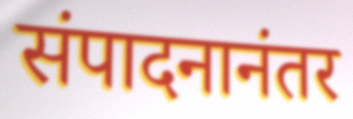
संपादनानंतर